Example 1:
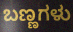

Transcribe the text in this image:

ಬಣ್ಣಗಳು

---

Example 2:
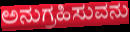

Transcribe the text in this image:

ಅನುಗ್ರಹಿಸುವನು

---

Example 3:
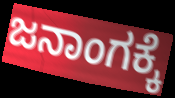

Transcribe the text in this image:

ಜನಾಂಗಕ್ಕೆ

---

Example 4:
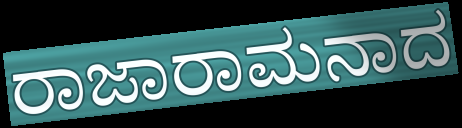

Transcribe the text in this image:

ರಾಜಾರಾಮನಾದ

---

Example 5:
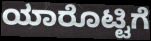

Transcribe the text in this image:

ಯಾರೊಟ್ಟಿಗೆ